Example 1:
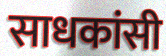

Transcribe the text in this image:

साधकांसी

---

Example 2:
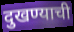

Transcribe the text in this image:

दुखण्याची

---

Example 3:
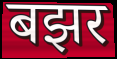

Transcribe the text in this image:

बझर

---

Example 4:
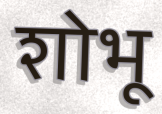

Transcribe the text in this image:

शोभू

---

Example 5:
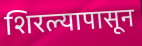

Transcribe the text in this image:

शिरल्यापासून